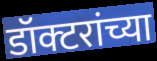
डॉक्‍टरांच्या